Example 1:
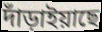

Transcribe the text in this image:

দাঁড়াইয়াছে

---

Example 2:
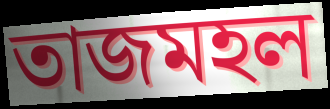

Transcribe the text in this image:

তাজমহল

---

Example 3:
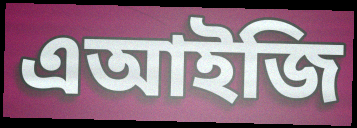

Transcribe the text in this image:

এআইজি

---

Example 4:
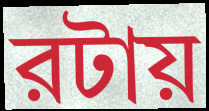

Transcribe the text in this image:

রটায়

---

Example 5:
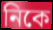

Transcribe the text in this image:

নিকে